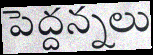
పెద్దన్నలు